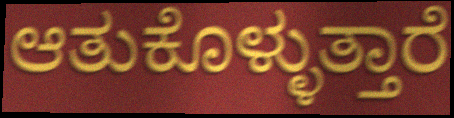
ಆತುಕೊಳ್ಳುತ್ತಾರೆ